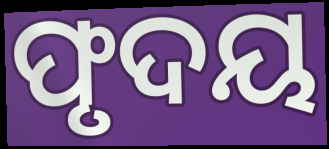
ଫୃଦୟ